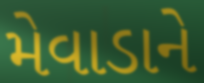
મેવાડાને